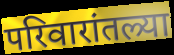
परिवारांतल्या